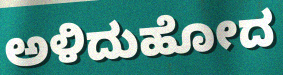
ಅಳಿದುಹೋದ